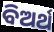
ବିଅର୍ଥ